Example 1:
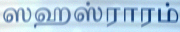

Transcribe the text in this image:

ஸஹஸ்ராரம்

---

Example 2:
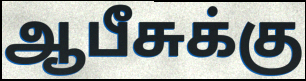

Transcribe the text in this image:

ஆபீசுக்கு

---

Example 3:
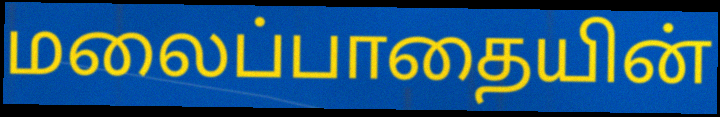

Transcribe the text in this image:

மலைப்பாதையின்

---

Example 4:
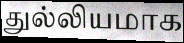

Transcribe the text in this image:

துல்லியமாக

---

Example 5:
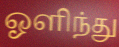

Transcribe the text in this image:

ஓளிந்து